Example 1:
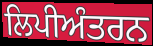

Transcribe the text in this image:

ਲਿਪੀਅੰਤਰਨ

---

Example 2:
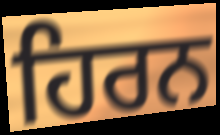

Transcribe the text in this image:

ਹਿਰਨ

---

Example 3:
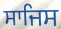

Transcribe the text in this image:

ਸਾਜਿਸ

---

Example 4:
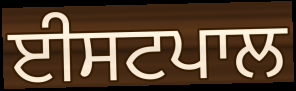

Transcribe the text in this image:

ਈਸਟਪਾਲ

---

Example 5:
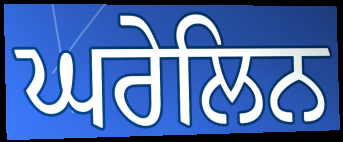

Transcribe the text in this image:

ਘਰੇਲਿਨ